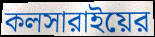
কলসারাইয়ের